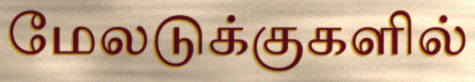
மேலடுக்குகளில்